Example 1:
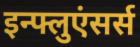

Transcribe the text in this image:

इन्फ्लुएंसर्स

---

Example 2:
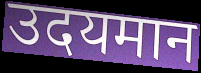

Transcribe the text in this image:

उदयमान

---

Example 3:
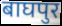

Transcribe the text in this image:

बाघपुर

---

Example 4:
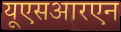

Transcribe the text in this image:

यूएसआरएन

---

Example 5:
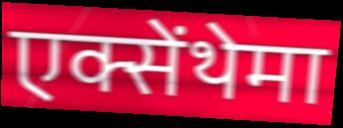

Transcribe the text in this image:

एक्सेंथेमा